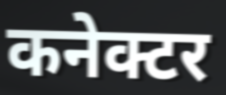
कनेक्टर